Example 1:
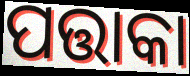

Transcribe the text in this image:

ପତ୍ତାକା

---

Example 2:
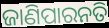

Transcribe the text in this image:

ଜାଣିପାରନତି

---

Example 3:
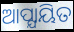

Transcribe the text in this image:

ଆପ୍ଯାୟିତ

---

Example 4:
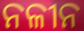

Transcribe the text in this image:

ନଳୀନ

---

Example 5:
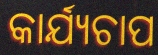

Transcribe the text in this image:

କାର୍ଯ୍ୟଚାପ